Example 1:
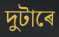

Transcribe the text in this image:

দুটাৰে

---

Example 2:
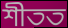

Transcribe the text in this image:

শীতত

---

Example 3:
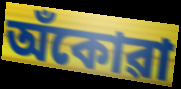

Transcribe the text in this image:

অঁকোৱা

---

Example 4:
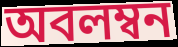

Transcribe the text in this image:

অবলম্বন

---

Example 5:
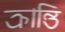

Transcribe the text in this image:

ক্ৰান্তি